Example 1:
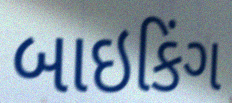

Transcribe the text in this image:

બાઇકિંગ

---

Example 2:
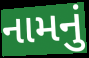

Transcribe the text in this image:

નામનું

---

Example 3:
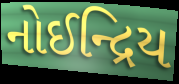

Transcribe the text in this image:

નોઈન્દ્રિય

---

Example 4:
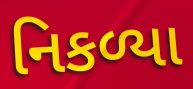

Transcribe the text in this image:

નિકળ્યા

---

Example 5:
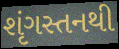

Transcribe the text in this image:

શૃંગસ્તનથી